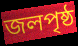
জলপৃষ্ঠ